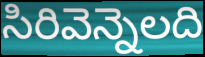
సిరివెన్నెలది